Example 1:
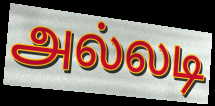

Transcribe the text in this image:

அல்லடி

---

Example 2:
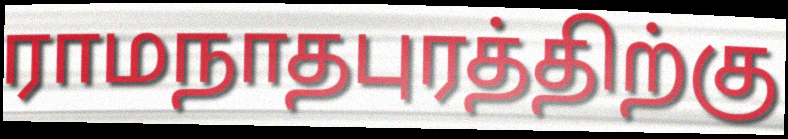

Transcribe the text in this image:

ராமநாதபுரத்திற்கு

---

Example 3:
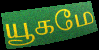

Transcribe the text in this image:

யூகமே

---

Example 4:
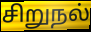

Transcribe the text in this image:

சிறுநல்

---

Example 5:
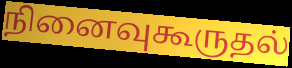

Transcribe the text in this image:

நினைவுகூருதல்